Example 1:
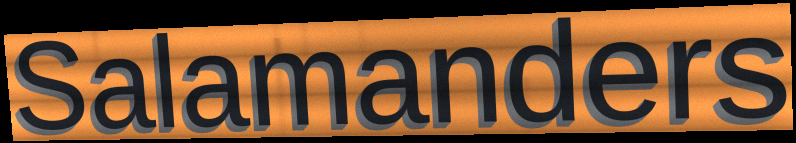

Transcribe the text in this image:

Salamanders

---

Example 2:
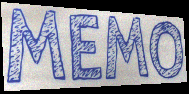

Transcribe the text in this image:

MEMO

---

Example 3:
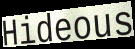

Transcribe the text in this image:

Hideous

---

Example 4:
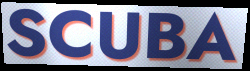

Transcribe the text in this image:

SCUBA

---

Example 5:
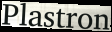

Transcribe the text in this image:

Plastron